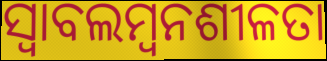
ସ୍ୱାବଲମ୍ୱନଶୀଳତା